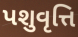
પશુવૃત્તિ